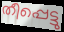
തീപ്പെട്ടു